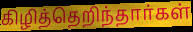
கிழித்தெறிந்தார்கள்